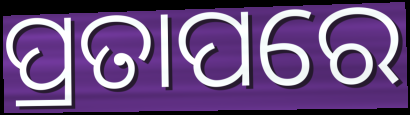
ପ୍ରତାପରେ